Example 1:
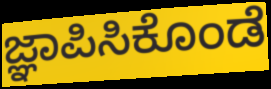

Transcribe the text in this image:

ಜ್ಞಾಪಿಸಿಕೊಂಡೆ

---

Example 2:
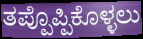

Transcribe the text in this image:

ತಪ್ಪೊಪ್ಪಿಕೊಳ್ಳಲು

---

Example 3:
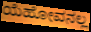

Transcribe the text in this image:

ಯೆಹೋವನಲ್ಲ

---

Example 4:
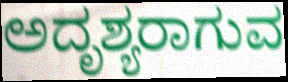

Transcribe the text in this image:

ಅದೃಶ್ಯರಾಗುವ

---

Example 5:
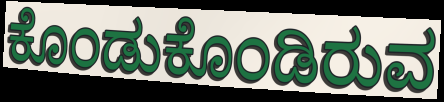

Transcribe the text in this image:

ಕೊಂಡುಕೊಂಡಿರುವ